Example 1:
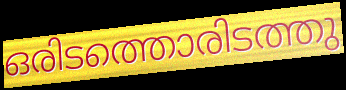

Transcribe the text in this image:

ഒരിടത്തൊരിടത്തു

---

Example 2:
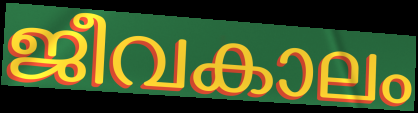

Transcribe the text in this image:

ജീവകാലം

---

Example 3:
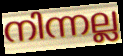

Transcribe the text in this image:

നിന്നല്ല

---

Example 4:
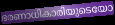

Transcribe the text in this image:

ഭരണാധികാരിയുടെയോ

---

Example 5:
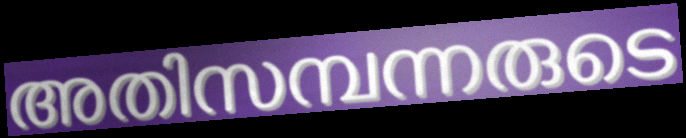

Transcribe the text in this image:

അതിസമ്പന്നരുടെ